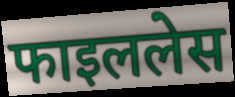
फाइललेस